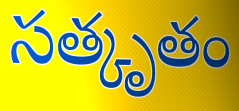
సత్కృతం